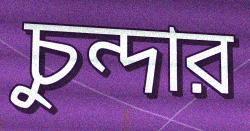
চুন্দার